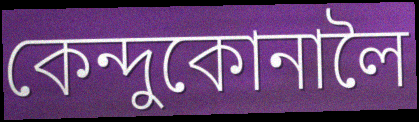
কেন্দুকোনালৈ